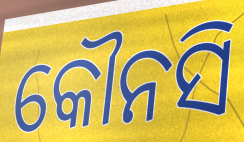
କୌନସି